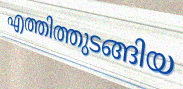
എത്തിത്തുടങ്ങിയ